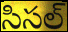
సిసల్